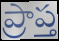
ప్రాప్త